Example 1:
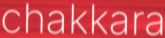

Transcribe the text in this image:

chakkara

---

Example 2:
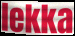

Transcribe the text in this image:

lekka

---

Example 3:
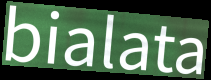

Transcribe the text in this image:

bialata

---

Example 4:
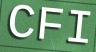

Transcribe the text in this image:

CFI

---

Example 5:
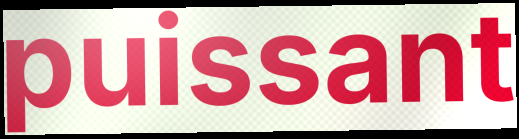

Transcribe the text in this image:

puissant